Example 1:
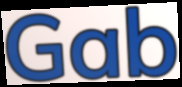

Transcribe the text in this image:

Gab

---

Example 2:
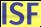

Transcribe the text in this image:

ISF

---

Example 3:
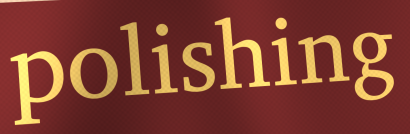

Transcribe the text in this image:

polishing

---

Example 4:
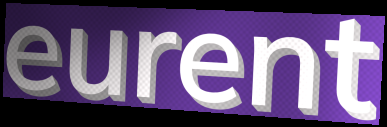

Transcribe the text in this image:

eurent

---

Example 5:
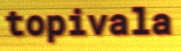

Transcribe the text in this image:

topivala